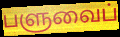
பளுவைப்